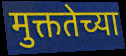
मुक्ततेच्या